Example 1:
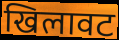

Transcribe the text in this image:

खिलावट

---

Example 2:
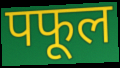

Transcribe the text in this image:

पफूल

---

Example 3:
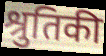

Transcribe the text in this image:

श्रुतिकी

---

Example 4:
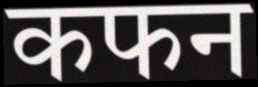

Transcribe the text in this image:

कफन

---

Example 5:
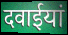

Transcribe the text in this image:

दवाईयां